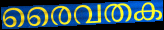
രൈവതക